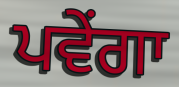
ਪਵੇਂਗਾ